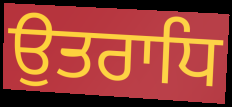
ਉਤਰਾਧਿ